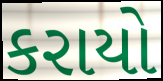
કરાયો